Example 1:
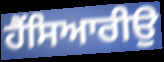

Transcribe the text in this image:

ਹੈਂਸਿਆਰੀਉ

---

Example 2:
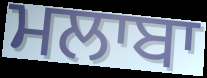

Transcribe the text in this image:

ਮਲਾਬਾ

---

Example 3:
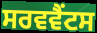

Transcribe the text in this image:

ਸਰਵਵੈਂਟਸ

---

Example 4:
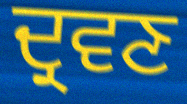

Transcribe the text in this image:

ਦ੍ਰਵਣ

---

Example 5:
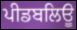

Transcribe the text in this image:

ਪੀਡਬਲਿਊ